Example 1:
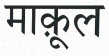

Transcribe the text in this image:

माक़ूल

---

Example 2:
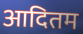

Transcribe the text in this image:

आदितम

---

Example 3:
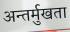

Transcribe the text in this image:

अन्तर्मुखता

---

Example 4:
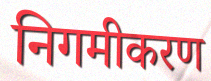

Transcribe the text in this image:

निगमीकरण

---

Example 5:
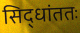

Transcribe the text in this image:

सिद्धांततः